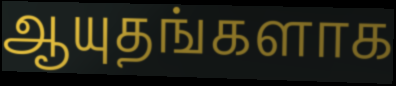
ஆயுதங்களாக